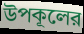
উপকূলের